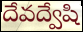
దేవద్వేషి